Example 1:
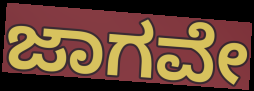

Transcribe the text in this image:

ಜಾಗವೇ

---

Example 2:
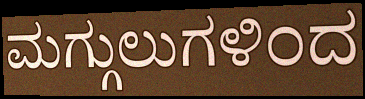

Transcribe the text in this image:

ಮಗ್ಗುಲುಗಳಿಂದ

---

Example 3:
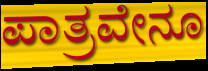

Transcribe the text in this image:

ಪಾತ್ರವೇನೂ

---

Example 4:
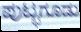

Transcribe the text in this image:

ಪುಟ್ಟಗೂಡು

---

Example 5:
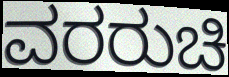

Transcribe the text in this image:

ವರರುಚಿ